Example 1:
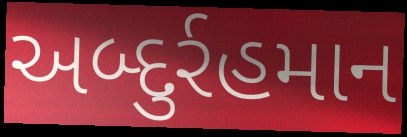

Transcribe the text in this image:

અબ્દુર્રહમાન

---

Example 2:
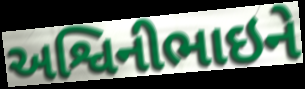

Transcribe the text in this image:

અશ્વિનીભાઇને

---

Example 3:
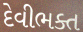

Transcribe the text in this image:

દેવીભક્ત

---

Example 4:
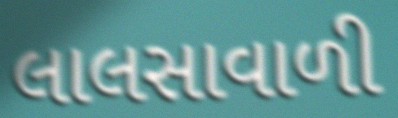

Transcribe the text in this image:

લાલસાવાળી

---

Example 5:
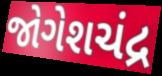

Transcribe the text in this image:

જોગેશચંદ્ર